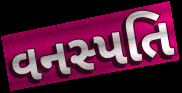
વનસ્પતિ